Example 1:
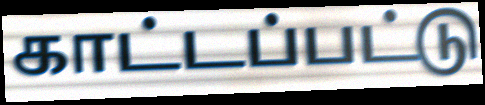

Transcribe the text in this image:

காட்டப்பட்டு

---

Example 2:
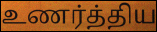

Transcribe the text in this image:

உணர்த்திய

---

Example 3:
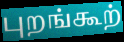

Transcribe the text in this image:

புறங்கூற்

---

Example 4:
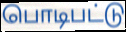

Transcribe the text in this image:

பொடிபட்டு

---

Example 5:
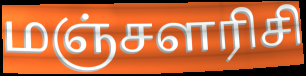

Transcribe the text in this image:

மஞ்சளரிசி